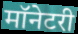
मॉनेटरी